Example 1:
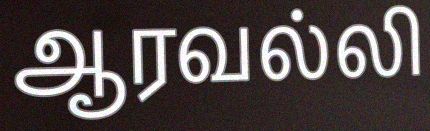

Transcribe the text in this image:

ஆரவல்லி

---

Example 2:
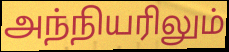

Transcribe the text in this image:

அந்நியரிலும்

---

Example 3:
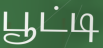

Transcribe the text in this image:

பூட்டி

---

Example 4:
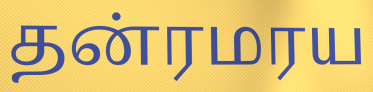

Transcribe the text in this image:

தன்ரமரய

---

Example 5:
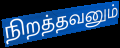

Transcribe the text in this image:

நிறத்தவனும்